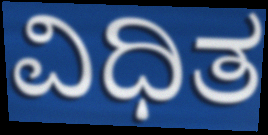
ವಿಧಿತ